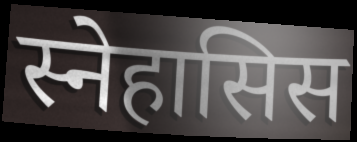
स्नेहासिस